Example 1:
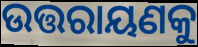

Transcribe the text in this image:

ଉତ୍ତରାୟଣକୁ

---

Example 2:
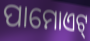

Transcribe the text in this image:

ପାମୋଏଟ୍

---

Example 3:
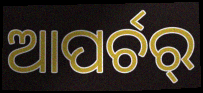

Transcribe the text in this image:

ଆପର୍ଚର୍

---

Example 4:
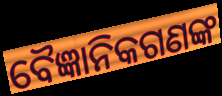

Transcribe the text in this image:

ବୈଜ୍ଞାନିକଗଣଙ୍କ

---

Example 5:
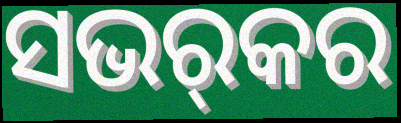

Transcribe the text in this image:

ସଭର୍‌କର